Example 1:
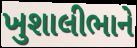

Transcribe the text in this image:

ખુશાલીભાને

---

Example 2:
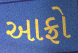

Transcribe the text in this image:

આફ્રો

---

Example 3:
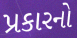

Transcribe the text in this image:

પ્રકારનો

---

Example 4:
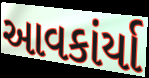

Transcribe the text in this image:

આવકાંર્યા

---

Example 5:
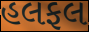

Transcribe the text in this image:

હલફલ